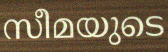
സീമയുടെ